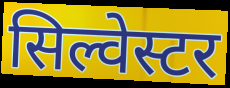
सिल्वेस्टर